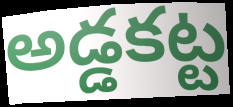
అడ్డకట్ట